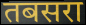
तबसरा